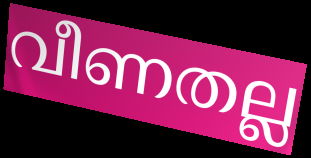
വീണതല്ല